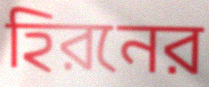
হিরনের